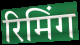
रिमिंग